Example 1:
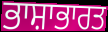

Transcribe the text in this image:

ਭਾਸ਼ਾਭਾਰਤ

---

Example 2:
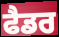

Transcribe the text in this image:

ਫੈਡਰ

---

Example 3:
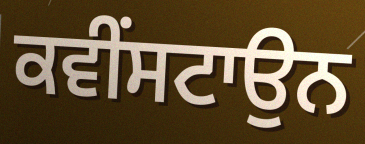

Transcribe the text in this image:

ਕਵੀਂਸਟਾਉਨ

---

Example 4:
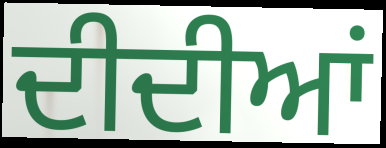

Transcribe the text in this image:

ਦੀਦੀਆਂ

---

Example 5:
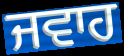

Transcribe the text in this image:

ਜਵਾਹ